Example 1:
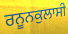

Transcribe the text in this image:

ਰਨੂਨਕੁਲਾਸੀ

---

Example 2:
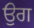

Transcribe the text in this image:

ਉਗ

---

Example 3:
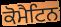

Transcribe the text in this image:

ਕੋਮੈਟਿਨ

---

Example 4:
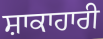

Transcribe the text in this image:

ਸ਼ਾਕਾਹਾਰੀ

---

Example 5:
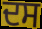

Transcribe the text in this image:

ਦਸ